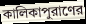
কালিকাপুরাণের